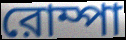
রোম্পা